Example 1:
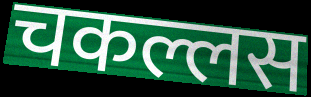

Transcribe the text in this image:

चकल्लस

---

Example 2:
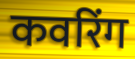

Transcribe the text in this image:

कवरिंग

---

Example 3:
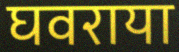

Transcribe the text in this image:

घवराया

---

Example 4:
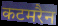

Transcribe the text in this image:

कटमरैन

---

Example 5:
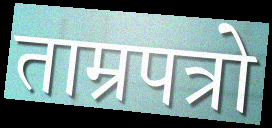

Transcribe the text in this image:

ताम्रपत्रो